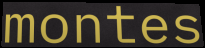
montes